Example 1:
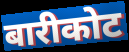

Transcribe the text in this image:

बारीकोट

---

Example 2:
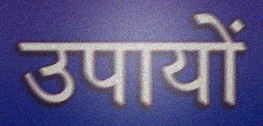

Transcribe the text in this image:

उपायों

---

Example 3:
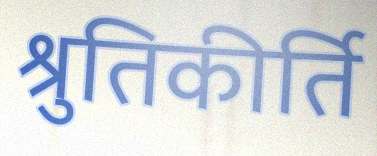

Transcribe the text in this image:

श्रुतिकीर्ति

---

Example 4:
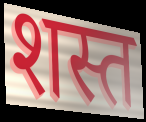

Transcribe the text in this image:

शस्त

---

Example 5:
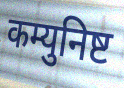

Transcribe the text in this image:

कम्युनिष्ट